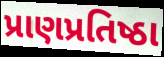
પ્રાણપ્રતિષ્ઠા